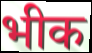
भीक